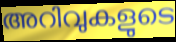
അറിവുകളുടെ